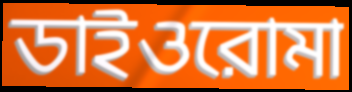
ডাইওরোমা